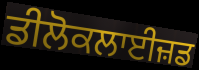
ਡੀਲੋਕਲਾਈਜ਼ਡ